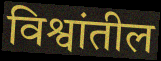
विश्वांतील